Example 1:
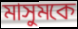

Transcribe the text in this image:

মাসুমকে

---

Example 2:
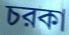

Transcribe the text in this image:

চরকা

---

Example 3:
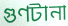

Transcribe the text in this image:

গুণটানা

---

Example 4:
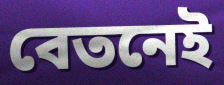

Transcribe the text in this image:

বেতনেই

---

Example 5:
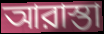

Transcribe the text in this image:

আরাস্তা